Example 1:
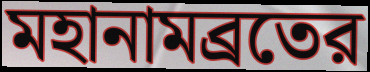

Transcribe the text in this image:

মহানামব্রতের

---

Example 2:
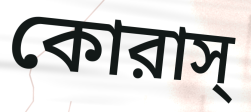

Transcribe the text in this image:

কোরাস্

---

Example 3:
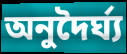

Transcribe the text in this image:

অনুদৈর্ঘ্য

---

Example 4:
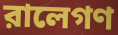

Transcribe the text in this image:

রালেগণ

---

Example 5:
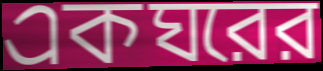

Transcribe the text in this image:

একঘরের